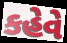
કહેવે